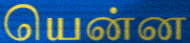
யென்ன